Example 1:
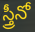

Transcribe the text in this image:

స్త్రీనో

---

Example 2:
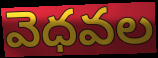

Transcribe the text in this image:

వెధవల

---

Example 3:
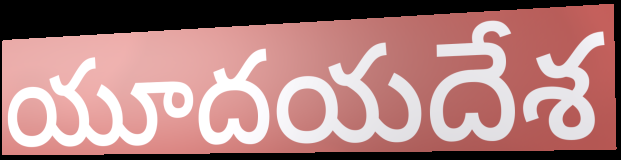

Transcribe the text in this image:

యూదయదేశ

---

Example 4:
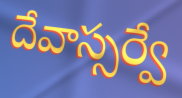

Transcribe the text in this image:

దేవాస్సర్వే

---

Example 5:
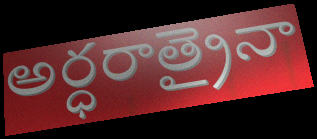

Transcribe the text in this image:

అర్ధరాత్రైనా